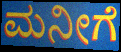
ಮನೀಗೆ